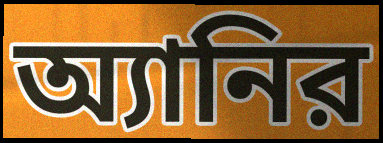
অ্যানির